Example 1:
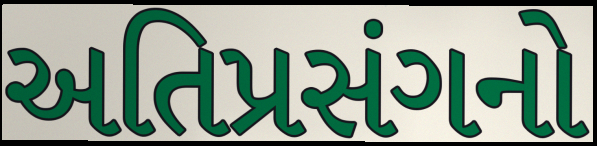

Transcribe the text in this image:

અતિપ્રસંગનો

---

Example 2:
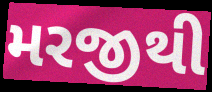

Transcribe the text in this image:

મરજીથી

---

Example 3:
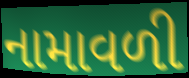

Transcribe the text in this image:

નામાવળી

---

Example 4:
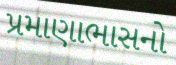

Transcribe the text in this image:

પ્રમાણાભાસનો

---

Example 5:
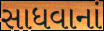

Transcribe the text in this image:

સાધવાનાં